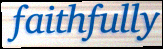
faithfully